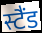
स्‍टैंड